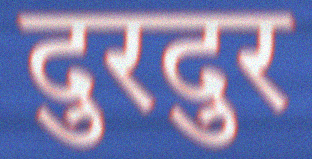
दुरदुर